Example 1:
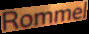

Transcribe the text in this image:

Rommel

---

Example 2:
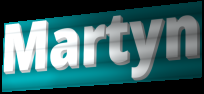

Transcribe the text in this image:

Martyn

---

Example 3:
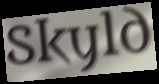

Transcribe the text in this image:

Skyld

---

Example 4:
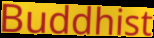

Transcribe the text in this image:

Buddhist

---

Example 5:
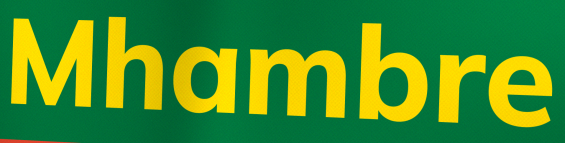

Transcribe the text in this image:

Mhambre